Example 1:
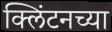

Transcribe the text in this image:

क्लिंटनच्या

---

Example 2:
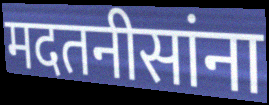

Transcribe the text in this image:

मदतनीसांना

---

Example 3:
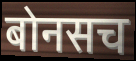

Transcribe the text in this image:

बोनसच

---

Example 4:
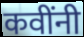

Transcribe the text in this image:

कवींनी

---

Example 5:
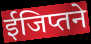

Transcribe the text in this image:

ईजिप्तने